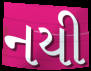
નયી